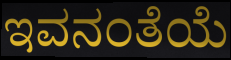
ಇವನಂತೆಯೆ